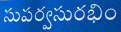
సుపర్వసురభిం